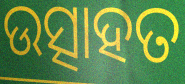
ଉତ୍ସାହତ